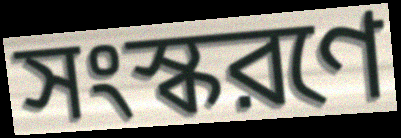
সংস্করণে